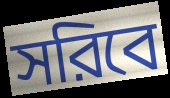
সরিবে